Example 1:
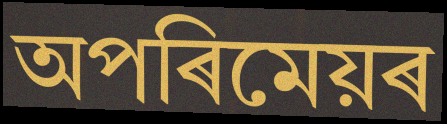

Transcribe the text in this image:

অপৰিমেয়ৰ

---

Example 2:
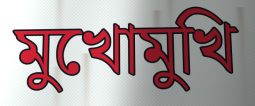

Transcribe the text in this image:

মুখোমুখি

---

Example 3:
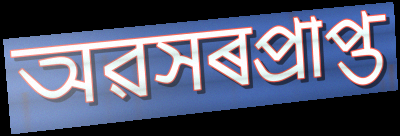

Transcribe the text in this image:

অৱসৰপ্ৰাপ্ত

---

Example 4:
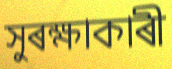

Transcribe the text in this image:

সুৰক্ষাকাৰী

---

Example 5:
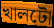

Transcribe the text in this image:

খালটো